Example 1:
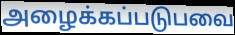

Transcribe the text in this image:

அழைக்கப்படுபவை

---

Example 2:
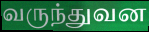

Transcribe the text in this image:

வருந்துவன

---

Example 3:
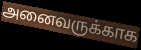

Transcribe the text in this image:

அனைவருக்காக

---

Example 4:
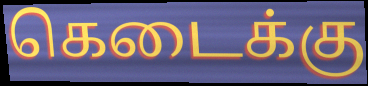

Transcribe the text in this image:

கெடைக்கு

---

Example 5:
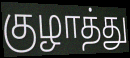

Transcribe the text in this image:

குழாத்து